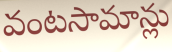
వంటసామాన్లు